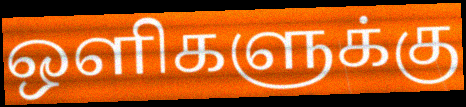
ஒளிகளுக்கு